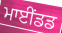
ਮਾਈਂਡਡ